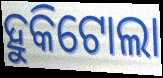
ହୁକିଟୋଲା